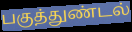
பகுத்துண்டல்